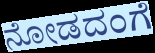
ನೋಡದಂಗೆ